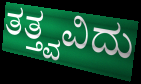
ತತ್ತ್ವವಿದು